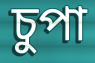
চুপা